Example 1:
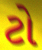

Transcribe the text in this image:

ટો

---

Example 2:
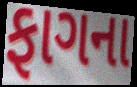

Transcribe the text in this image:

ફાગના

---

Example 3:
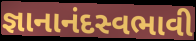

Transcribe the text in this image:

જ્ઞાનાનંદસ્વભાવી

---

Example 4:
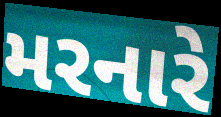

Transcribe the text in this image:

મરનારે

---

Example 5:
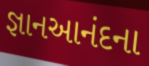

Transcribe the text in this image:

જ્ઞાનઆનંદના